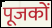
पूजकों